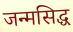
जन्मसिद्ध